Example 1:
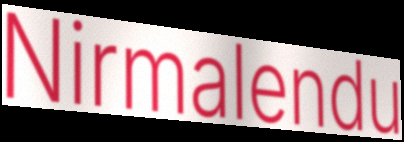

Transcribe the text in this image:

Nirmalendu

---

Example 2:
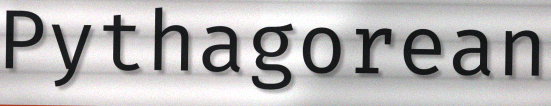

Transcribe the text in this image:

Pythagorean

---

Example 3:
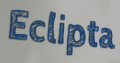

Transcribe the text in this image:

Eclipta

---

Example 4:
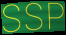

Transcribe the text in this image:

SSP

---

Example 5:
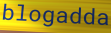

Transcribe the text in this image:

blogadda